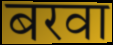
बरवा